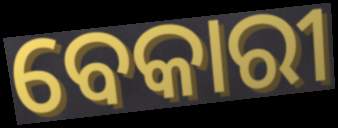
ବେକାରୀ